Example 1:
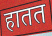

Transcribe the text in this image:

हातत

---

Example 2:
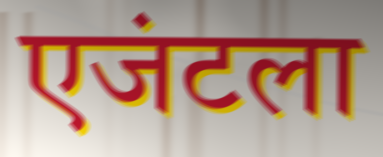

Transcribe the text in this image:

एजंटला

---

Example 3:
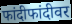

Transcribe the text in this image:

फांदीफांदीवर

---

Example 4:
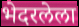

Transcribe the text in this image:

भेदरलेला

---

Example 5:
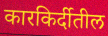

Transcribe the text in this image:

कारकिर्दीतील